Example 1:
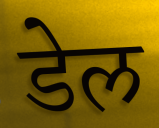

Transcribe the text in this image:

डेल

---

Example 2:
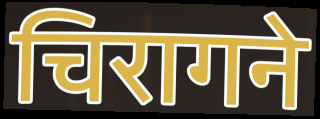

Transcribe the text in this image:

चिरागने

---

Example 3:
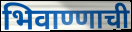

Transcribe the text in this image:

भिवाण्णाची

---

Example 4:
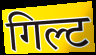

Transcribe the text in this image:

गिल्ट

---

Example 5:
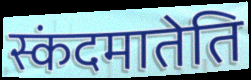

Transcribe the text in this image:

स्कंदमातेति